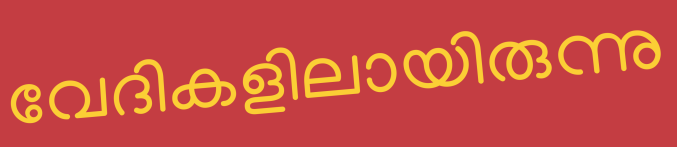
വേദികളിലായിരുന്നു